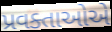
પ્રવક્તાઓએ